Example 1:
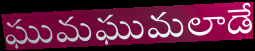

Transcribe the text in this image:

ఘుమఘుమలాడే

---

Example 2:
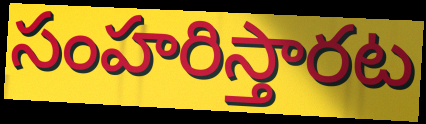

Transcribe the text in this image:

సంహరిస్తారట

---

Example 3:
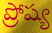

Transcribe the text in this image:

ప్రోష్య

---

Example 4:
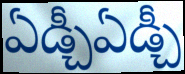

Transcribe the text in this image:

ఏడ్చీఏడ్చీ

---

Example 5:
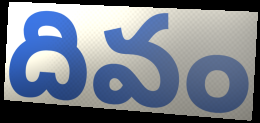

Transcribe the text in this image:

దివం